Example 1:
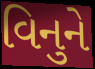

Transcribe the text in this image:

વિનુને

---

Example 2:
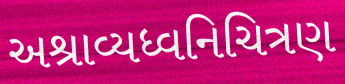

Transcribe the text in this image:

અશ્રાવ્યધ્વનિચિત્રણ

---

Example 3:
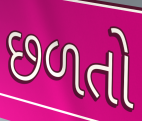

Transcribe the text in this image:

છળતો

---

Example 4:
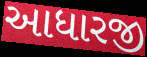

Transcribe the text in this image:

આધારજી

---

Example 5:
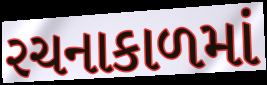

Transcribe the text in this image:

રચનાકાળમાં